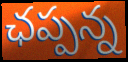
ఛప్పన్న